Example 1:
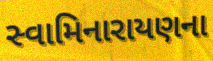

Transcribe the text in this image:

સ્વામિનારાયણના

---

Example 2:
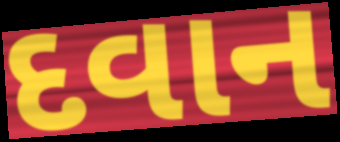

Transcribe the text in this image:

દવાન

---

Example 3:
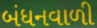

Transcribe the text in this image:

બંધનવાળી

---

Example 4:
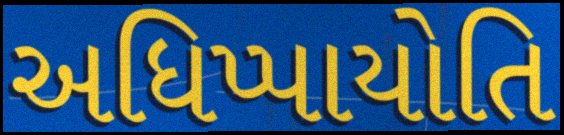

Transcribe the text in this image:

અધિપ્પાયોતિ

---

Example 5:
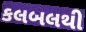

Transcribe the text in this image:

કલબલથી